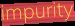
impurity